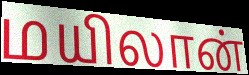
மயிலான்